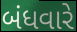
બંધવારે